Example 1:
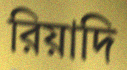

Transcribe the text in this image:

রিয়াদি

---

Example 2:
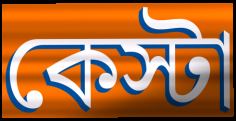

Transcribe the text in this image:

কেস্টা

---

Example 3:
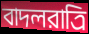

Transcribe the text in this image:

বাদলরাত্রি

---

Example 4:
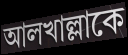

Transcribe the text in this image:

আলখাল্লাকে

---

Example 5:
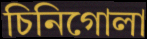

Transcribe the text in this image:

চিনিগোলা